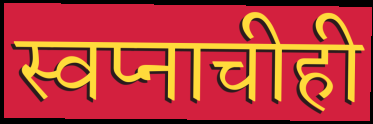
स्वप्नाचीही